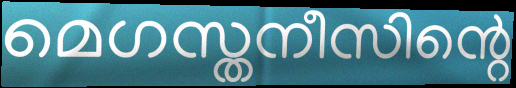
മെഗസ്തനീസിന്റെ